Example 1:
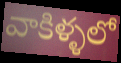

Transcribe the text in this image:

వాకిళ్ళలో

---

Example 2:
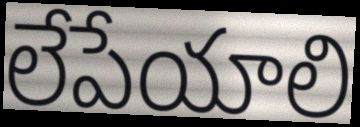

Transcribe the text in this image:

లేపేయాలి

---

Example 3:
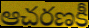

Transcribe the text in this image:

ఆచరణకీ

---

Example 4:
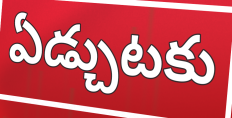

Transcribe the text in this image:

ఏడ్చుటకు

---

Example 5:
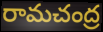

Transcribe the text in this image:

రామచంద్ర